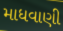
માધવાણી